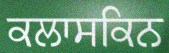
ਕਲਾਸਕਿਨ